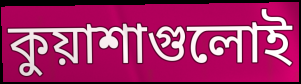
কুয়াশাগুলোই